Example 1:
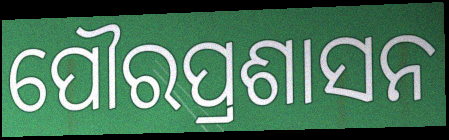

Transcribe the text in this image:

ପୌରପ୍ରଶାସନ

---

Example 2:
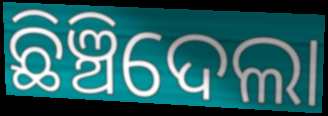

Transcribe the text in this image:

ଛିଞ୍ଚିଦେଲା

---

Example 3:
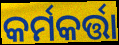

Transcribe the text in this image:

କର୍ମକର୍ତ୍ତା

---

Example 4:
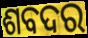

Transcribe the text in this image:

ଶବଦର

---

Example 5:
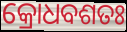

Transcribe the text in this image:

କ୍ରୋଧବଶତଃ